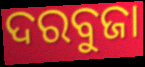
ଦରବୁଜା